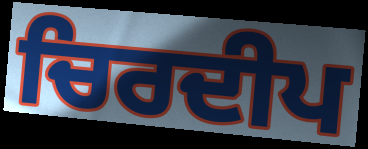
ਚਿਰਦੀਪ